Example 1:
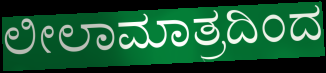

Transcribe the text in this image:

ಲೀಲಾಮಾತ್ರದಿಂದ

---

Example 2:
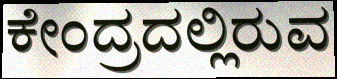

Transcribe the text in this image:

ಕೇಂದ್ರದಲ್ಲಿರುವ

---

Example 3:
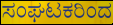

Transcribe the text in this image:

ಸಂಘಟಕರಿಂದ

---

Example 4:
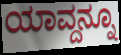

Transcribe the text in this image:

ಯಾವ್ದನ್ನೂ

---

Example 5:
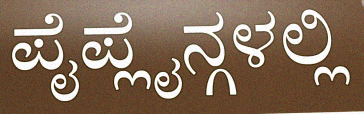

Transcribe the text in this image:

ಪೈಪ್ಲೈನ್ಗಳಲ್ಲಿ